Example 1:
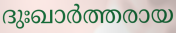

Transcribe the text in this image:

ദുഃഖാർത്തരായ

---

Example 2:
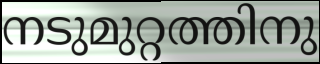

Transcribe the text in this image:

നടുമുറ്റത്തിനു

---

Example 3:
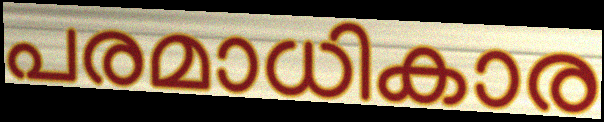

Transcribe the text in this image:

പരമാധികാര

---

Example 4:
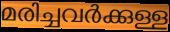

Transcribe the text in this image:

മരിച്ചവർക്കുള്ള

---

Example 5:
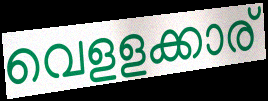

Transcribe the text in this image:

വെളളക്കാര്